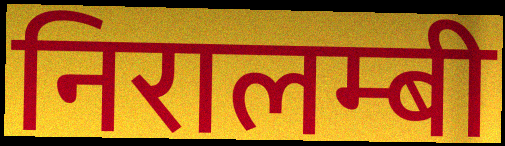
निरालम्बी